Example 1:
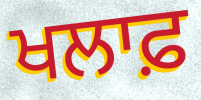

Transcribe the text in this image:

ਖਲਾਫ਼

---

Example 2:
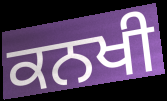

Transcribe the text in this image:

ਕਨਖੀ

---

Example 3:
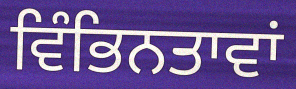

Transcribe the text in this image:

ਵਿੰਭਿਨਤਾਵਾਂ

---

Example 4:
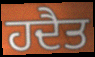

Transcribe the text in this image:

ਹਦੈਤ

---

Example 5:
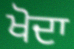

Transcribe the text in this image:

ਖੋਦਾ